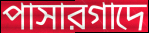
পাসারগাদে